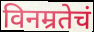
विनम्रतेचं